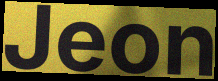
Jeon